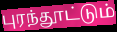
புரந்தூட்டும்